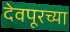
देवपूरच्या